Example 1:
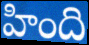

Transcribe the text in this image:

హింది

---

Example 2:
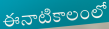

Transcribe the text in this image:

ఈనాటికాలంలో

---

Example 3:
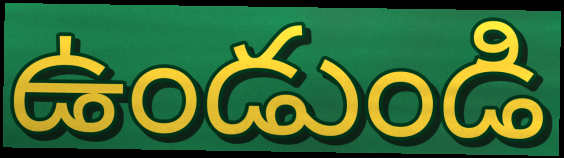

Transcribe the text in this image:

ఉండుండి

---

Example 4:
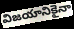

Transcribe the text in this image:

విజయానికైనా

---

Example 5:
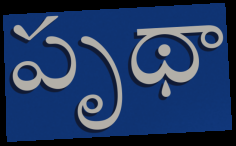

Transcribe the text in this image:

పృథా